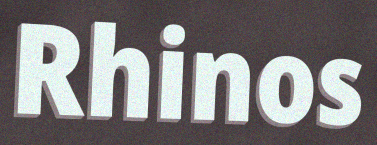
Rhinos